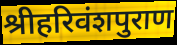
श्रीहरिवंशपुराण